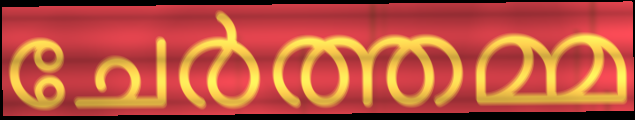
ചേർത്തമ്മ